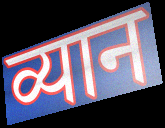
व्यान